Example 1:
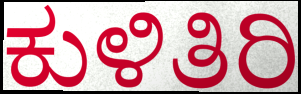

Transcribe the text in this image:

ಕುಳಿತಿರಿ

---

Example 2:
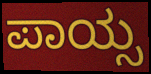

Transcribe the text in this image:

ಪಾಯ್ಸ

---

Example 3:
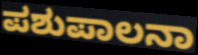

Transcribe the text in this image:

ಪಶುಪಾಲನಾ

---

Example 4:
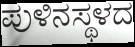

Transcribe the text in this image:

ಪುಳಿನಸ್ಥಳದ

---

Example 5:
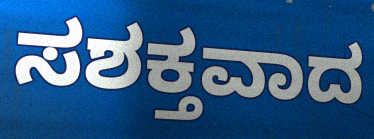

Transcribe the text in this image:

ಸಶಕ್ತವಾದ